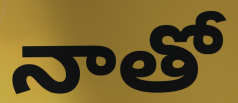
నాతో